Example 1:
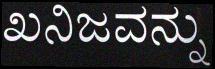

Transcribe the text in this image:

ಖನಿಜವನ್ನು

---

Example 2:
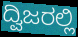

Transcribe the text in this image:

ದ್ವಿಜರಲ್ಲಿ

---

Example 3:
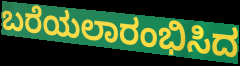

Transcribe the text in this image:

ಬರೆಯಲಾರಂಭಿಸಿದ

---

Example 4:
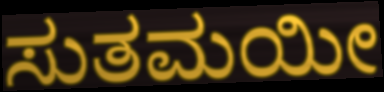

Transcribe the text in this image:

ಸುತಮಯೀ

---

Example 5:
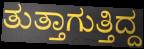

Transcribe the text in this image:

ತುತ್ತಾಗುತ್ತಿದ್ದ